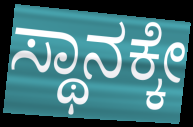
ಸ್ಥಾನಕ್ಕೇ